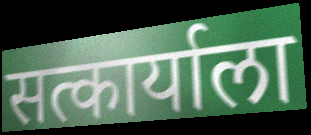
सत्कार्याला